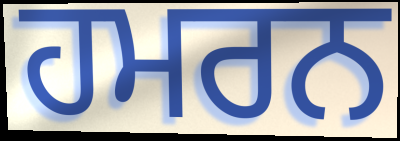
ਹਮਰਨ